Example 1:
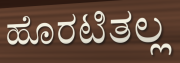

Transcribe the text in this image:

ಹೊರಟಿತಲ್ಲ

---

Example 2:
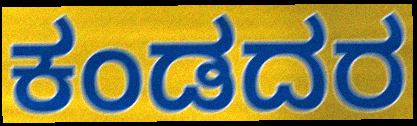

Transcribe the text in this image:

ಕಂಡದರ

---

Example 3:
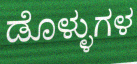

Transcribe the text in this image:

ಡೊಳ್ಳುಗಳ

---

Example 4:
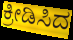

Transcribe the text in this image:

ಕ್ರೀಡಿಸಿದ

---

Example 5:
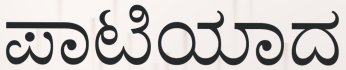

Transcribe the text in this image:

ಪಾಟಿಯಾದ